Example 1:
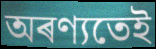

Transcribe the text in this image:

অৰণ্যতেই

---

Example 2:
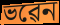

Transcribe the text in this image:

ভৱেন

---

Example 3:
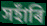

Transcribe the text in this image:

সহাঁৰি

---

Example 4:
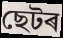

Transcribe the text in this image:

ছেটৰ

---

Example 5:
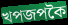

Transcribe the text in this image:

খপজপকৈ